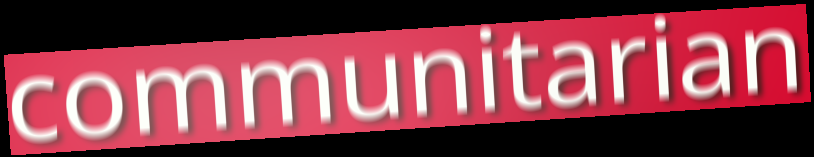
communitarian